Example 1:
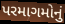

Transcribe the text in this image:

પરમાગમોનું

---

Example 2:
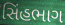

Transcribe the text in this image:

સિંહભાગ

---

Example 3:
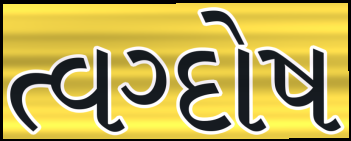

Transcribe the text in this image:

ત્વગ્દોષ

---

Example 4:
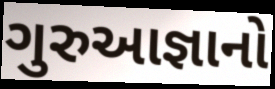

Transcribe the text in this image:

ગુરુઆજ્ઞાનો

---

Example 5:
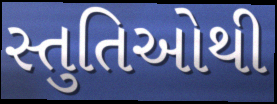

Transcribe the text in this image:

સ્તુતિઓથી